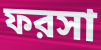
ফরসা